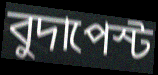
বুদাপেস্ট